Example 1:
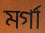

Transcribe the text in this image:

মৰ্গা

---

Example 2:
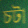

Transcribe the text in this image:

চটা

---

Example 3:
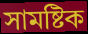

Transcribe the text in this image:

সামষ্টিক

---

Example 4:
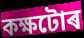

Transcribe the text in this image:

কক্ষটোৰ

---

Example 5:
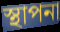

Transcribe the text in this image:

স্থাপনা